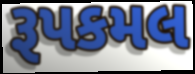
રૂપકમલ